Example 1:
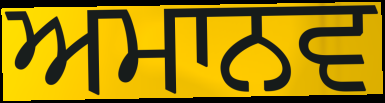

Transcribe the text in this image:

ਅਮਾਨਵ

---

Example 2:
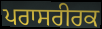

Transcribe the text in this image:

ਪਰਾਸਰੀਰਕ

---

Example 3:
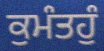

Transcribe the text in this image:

ਕੁਮੰਤਹੁੰ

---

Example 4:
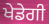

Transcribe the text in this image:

ਖੇਡੇਗੀ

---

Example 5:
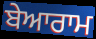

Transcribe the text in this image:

ਬੇਆਰਾਮ